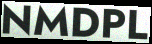
NMDPL